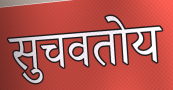
सुचवतोय